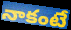
నాకంటే